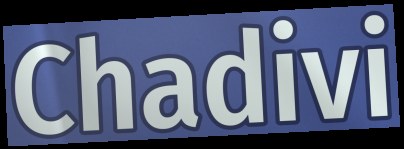
Chadivi